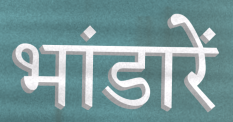
भांडारें